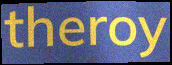
theroy